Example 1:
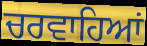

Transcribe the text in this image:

ਚਰਵਾਹਿਆਂ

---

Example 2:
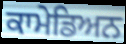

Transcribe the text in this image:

ਕਾਮੇਡਿਅਨ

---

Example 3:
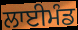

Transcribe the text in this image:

ਲਾਈਮੰਡ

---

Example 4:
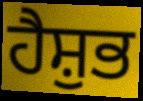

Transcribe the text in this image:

ਹੈਸ਼ੁਭ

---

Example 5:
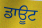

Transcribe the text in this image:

ਡਾਊਟ